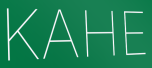
KAHE